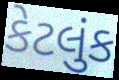
કેટલુંક